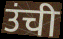
उंची